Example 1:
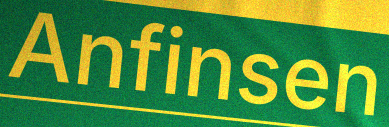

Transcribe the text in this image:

Anfinsen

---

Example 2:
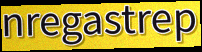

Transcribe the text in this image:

nregastrep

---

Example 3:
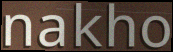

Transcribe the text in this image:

nakho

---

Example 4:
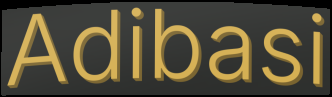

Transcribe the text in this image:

Adibasi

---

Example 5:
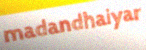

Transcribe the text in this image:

madandhaiyar